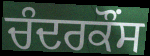
ਚੰਦਰਕੌਂਸ